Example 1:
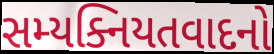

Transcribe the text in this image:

સમ્યક્નિયતવાદનો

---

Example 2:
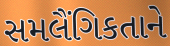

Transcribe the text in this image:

સમલૈંગિકતાને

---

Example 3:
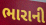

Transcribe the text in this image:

ભારાની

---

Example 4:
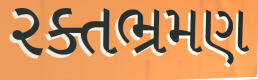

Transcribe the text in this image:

રક્તભ્રમણ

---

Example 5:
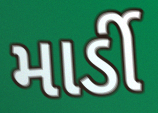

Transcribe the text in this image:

માર્ડી